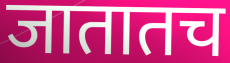
जातातच